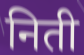
निती